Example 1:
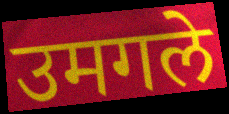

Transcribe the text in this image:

उमगले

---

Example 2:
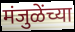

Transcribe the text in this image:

मंजुळेंच्या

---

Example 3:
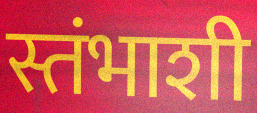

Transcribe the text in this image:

स्तंभाशी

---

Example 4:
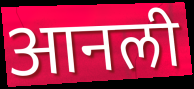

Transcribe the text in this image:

आनली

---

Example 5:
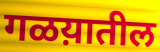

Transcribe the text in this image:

गळय़ातील